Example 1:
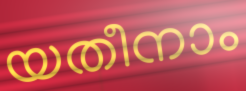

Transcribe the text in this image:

യതീനാം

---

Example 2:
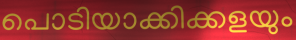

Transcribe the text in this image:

പൊടിയാക്കിക്കളയും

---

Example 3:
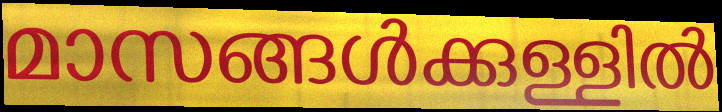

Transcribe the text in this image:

മാസങ്ങൾക്കുള്ളിൽ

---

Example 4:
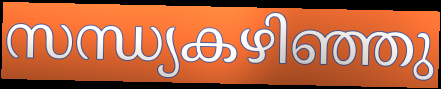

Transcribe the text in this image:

സന്ധ്യകഴിഞ്ഞു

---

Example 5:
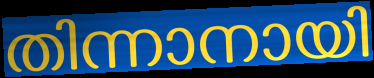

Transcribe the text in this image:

തിന്നാനായി